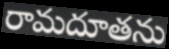
రామదూతను